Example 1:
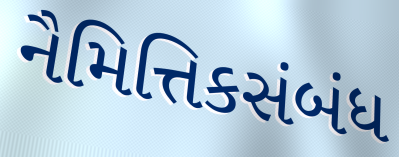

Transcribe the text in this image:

નૈમિત્તિકસંબંધ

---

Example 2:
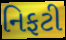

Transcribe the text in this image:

નિફટી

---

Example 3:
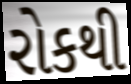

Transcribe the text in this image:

રોકથી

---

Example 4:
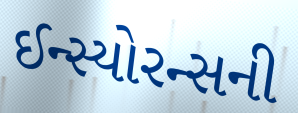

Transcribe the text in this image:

ઈન્સ્યોરન્સની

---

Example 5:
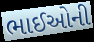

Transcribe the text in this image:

ભાઈઓની